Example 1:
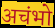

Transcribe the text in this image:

अचंभो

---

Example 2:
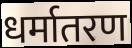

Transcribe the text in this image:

धर्मातरण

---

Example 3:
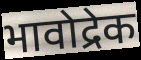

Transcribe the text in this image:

भावोद्रेक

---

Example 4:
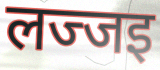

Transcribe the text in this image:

लज्जइ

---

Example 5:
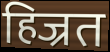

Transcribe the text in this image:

हिज्रत